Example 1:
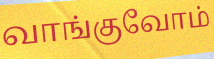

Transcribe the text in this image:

வாங்குவோம்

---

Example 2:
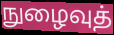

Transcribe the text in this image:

நுழைவுத்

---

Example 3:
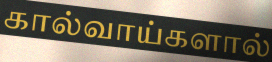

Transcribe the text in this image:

கால்வாய்களால்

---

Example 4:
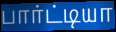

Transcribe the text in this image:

பார்ட்டியா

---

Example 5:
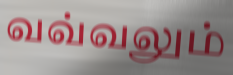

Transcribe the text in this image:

வவ்வலும்